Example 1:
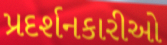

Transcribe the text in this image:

પ્રદર્શનકારીઓ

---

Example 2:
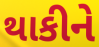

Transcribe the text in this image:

થાકીને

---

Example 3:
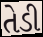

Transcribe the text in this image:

તેડી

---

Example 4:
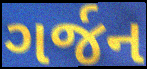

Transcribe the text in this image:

ગર્જન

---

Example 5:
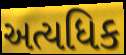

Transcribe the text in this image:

અત્યધિક